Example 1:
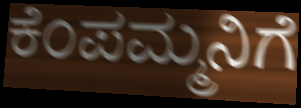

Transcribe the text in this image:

ಕೆಂಪಮ್ಮನಿಗೆ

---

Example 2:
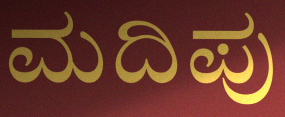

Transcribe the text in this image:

ಮದಿಪು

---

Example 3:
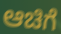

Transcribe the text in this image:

ಆಚಿಗೆ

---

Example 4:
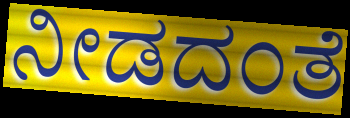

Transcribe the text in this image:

ನೀಡದಂತೆ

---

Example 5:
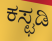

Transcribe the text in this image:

ಕಸ್ಟಡಿ